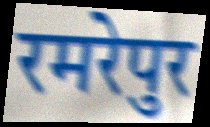
रमरेपुर